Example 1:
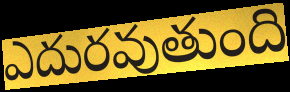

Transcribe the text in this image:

ఎదురవుతుంది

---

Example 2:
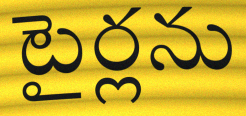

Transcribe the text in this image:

టైర్లను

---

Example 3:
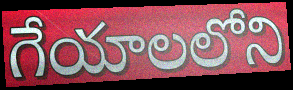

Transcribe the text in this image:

గేయాలలోని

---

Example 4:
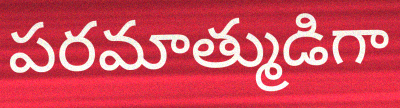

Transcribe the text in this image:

పరమాత్ముడిగా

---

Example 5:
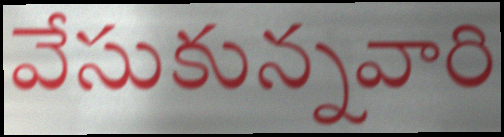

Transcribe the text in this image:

వేసుకున్నవారి